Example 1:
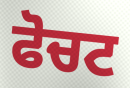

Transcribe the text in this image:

ਫੋਚਟ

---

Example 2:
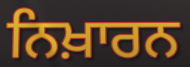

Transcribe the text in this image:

ਨਿਖ਼ਾਰਨ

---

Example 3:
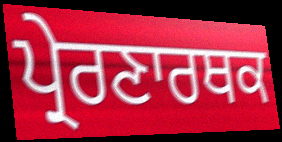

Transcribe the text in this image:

ਪ੍ਰੇਰਣਾਰਥਕ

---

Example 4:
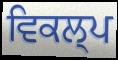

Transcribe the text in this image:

ਵਿਕਲ੍ਪ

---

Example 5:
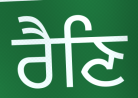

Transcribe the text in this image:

ਰੈਣਿ